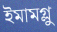
ইমামগ্লু